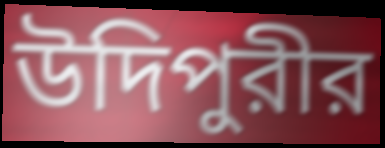
উদিপুরীর